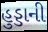
હુડ્ડાની